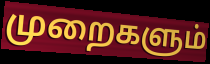
முறைகளும்